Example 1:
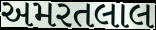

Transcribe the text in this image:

અમરતલાલ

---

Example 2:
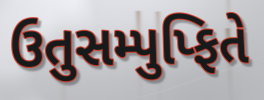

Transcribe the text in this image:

ઉતુસમ્પુપ્ફિતે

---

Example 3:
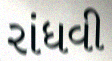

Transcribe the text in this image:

રાંધવી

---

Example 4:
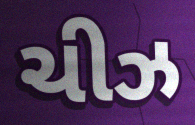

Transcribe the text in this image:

ચીઝ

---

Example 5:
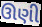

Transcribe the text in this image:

ઊણી